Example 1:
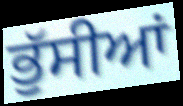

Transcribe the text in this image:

ਭੁੱਸੀਆਂ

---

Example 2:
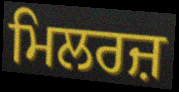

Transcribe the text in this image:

ਮਿਲਰਜ਼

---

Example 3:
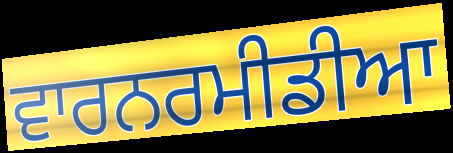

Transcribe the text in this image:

ਵਾਰਨਰਮੀਡੀਆ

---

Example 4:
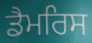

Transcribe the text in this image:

ਡੈਮਰਿਸ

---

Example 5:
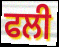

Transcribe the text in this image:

ਫਲੀ